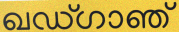
ഖഡ്ഗാഞ്